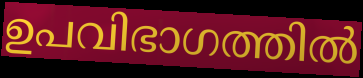
ഉപവിഭാഗത്തിൽ